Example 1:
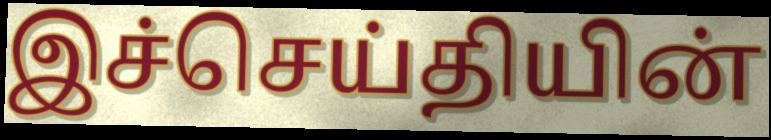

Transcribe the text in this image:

இச்செய்தியின்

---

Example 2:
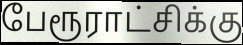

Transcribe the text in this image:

பேரூராட்சிக்கு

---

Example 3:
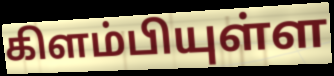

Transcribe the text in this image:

கிளம்பியுள்ள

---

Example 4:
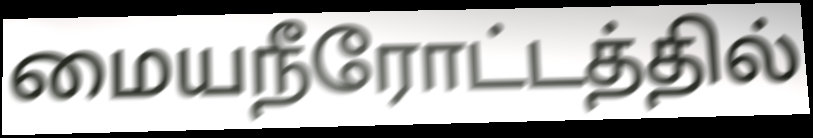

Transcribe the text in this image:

மையநீரோட்டத்தில்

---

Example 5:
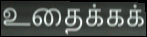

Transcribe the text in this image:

உதைக்கக்